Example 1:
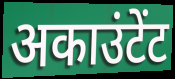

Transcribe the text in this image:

अकाउंटेंट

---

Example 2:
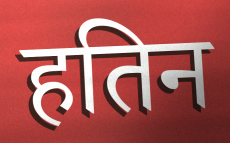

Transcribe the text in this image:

हतिन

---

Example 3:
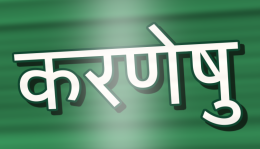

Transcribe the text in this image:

करणेषु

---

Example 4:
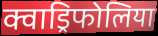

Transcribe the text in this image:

क्वाड्रिफोलिया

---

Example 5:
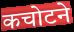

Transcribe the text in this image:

कचोटने